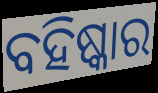
ବହିଷ୍କାର